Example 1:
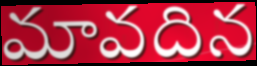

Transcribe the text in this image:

మావదిన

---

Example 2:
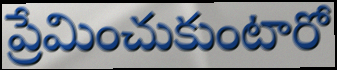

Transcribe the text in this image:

ప్రేమించుకుంటారో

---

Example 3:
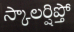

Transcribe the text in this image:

స్కాలర్షిప్తో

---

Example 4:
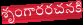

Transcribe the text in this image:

శృంగారరచనకి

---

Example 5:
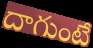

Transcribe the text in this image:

దాగుంటే